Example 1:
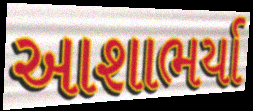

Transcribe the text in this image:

આશાભર્યા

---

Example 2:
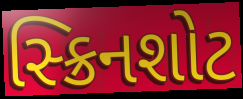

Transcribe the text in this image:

સ્ક્રિનશોટ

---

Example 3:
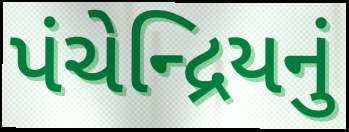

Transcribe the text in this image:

પંચેન્દ્રિયનું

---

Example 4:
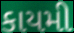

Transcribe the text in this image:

કાયમી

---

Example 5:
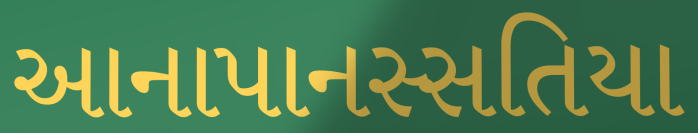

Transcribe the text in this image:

આનાપાનસ્સતિયા